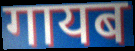
गायब